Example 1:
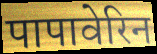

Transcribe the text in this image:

पापावेरिन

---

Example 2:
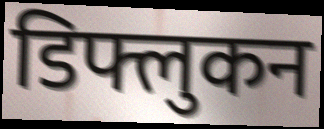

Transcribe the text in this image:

डिफ्लुकन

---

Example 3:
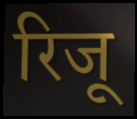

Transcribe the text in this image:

रिजू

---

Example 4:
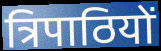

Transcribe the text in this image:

त्रिपाठियों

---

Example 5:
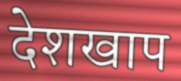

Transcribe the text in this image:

देशखाप